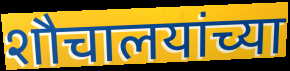
शौचालयांच्या